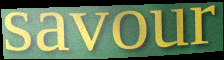
savour